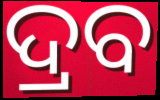
ଦ୍ରବ